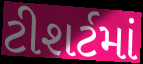
ટીશર્ટમાં